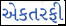
એકતરફી